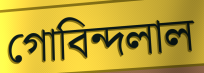
গোবিন্দলাল